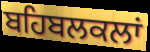
ਬਹਿਬਲਕਲਾਂ